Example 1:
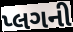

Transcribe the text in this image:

પ્લગની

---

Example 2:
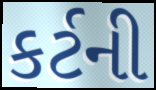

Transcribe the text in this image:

કર્ટની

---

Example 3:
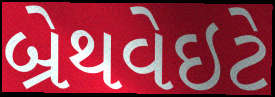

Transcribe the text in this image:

બ્રેથવેઇટે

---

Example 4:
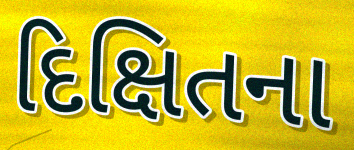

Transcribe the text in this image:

દિક્ષિતના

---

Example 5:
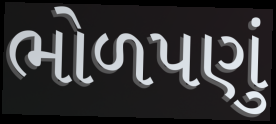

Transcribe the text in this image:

ભોળપણું